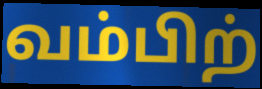
வம்பிற்